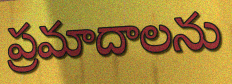
ప్రమాదాలను